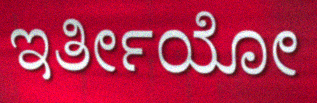
ಇರ್ತೀಯೋ